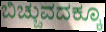
ಬಿಚ್ಚುವದಕ್ಕೂ